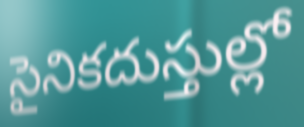
సైనికదుస్తుల్లో